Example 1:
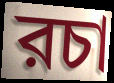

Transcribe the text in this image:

রচা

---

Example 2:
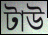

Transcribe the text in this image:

টাউ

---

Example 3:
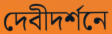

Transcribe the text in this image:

দেবীদর্শনে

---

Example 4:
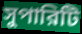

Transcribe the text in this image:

সুপারিটি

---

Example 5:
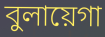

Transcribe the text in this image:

বুলায়েগা